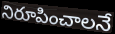
నిరూపించాలనే